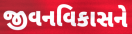
જીવનવિકાસને